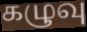
கழுவு